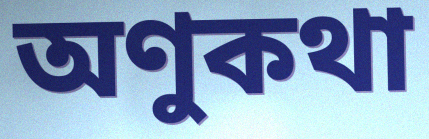
অণুকথা